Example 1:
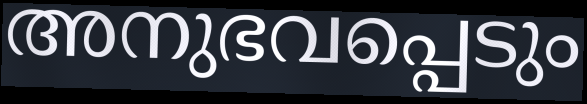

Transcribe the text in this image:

അനുഭവപ്പെടും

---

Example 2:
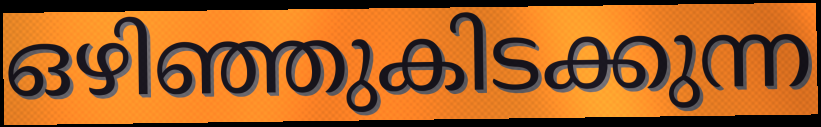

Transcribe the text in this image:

ഒഴിഞ്ഞുകിടക്കുന്ന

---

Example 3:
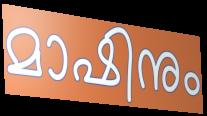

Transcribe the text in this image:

മാഷിനും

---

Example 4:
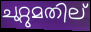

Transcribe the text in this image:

ചുറ്റുമതില്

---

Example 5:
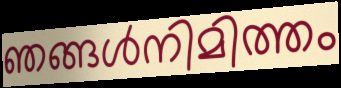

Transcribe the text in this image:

ഞങ്ങൾനിമിത്തം